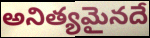
అనిత్యమైనదే